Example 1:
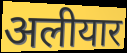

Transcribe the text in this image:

अलीयार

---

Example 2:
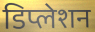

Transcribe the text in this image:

डिप्लेशन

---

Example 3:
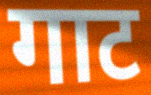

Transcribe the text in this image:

गाट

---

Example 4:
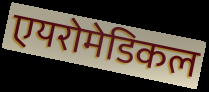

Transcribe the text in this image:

एयरोमेडिकल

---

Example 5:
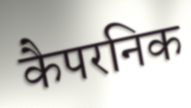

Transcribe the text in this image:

कैपरनिक